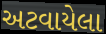
અટવાયેલા